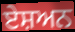
ਏਸ਼ਅਨ